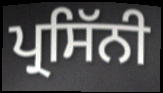
ਪ੍ਰਸਿੱਨੀ